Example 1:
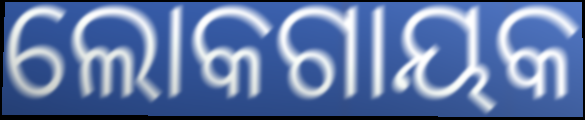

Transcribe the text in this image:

ଲୋକଗାୟକ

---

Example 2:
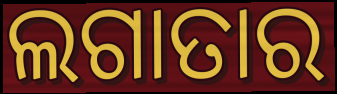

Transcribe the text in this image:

ଲଗାତାର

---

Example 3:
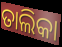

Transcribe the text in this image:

ତାଲିକା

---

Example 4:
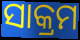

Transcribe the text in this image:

ସାକ୍ରମ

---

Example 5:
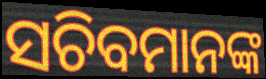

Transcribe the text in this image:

ସଚିବମାନଙ୍କ